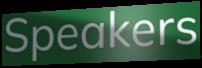
Speakers